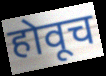
होवूच